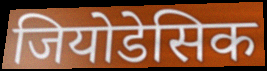
जियोडेसिक